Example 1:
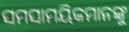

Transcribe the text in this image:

ସମସାମୟିକମାନଙ୍କୁ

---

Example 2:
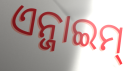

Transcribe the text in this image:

ଏନ୍ଜାଇମ୍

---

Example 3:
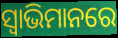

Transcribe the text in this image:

ସ୍ୱାଭିମାନରେ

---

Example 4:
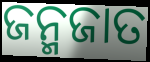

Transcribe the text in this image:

ଜନ୍ମଜାତ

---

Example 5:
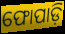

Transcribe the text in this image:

ଫୋପାଡ଼ି